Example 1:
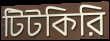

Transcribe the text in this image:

টিটকিরি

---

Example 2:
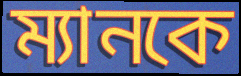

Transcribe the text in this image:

ম্যানকে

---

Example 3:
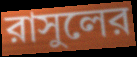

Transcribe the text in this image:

রাসুলের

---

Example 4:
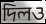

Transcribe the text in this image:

দিলও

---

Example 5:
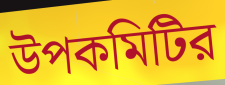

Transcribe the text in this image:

উপকমিটির